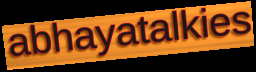
abhayatalkies